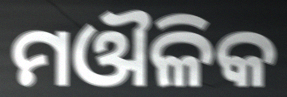
ମଔଳିକ